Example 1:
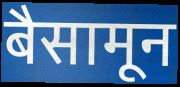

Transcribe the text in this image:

बैसामून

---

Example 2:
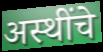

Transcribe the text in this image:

अस्थींचे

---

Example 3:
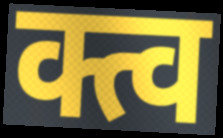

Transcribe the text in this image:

क्त्व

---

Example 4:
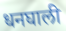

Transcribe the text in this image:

धनघाली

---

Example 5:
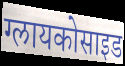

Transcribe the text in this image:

ग्लायकोसाइड